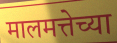
मालमत्तेच्या